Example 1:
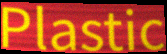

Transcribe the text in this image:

Plastic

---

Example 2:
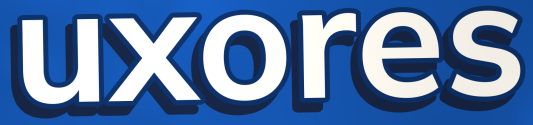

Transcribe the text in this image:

uxores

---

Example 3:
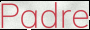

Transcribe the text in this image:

Padre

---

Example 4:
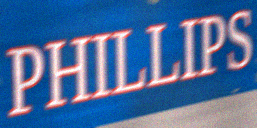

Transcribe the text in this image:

PHILLIPS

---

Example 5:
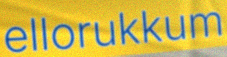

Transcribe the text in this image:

ellorukkum